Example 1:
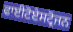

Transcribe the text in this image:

ਫਾਈਟੋਏਸਟ੍ਰੋਜਨ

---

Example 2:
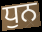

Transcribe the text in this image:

ਧੁਨ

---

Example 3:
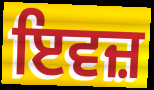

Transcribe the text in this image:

ਇਵਜ਼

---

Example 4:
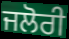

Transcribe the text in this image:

ਜਲੋਰੀ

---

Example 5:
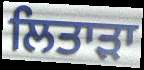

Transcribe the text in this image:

ਲਿਤਾੜਾ